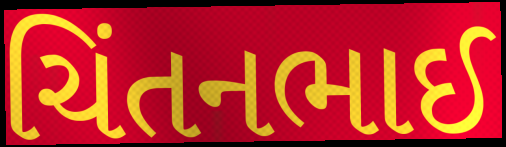
ચિંતનભાઈ